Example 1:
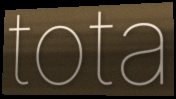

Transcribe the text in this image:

tota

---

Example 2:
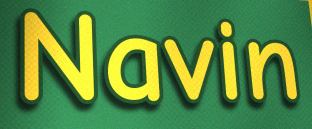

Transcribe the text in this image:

Navin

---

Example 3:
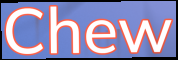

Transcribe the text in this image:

Chew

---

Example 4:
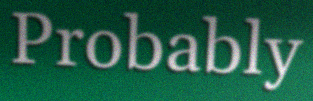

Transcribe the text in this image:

Probably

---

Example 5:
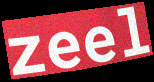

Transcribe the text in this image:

zeel